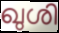
ഖുശി